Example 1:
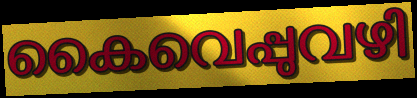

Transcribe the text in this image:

കൈവെപ്പുവഴി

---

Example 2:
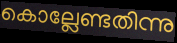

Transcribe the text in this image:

കൊല്ലേണ്ടതിന്നു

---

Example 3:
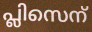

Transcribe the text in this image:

പ്ലിസെന്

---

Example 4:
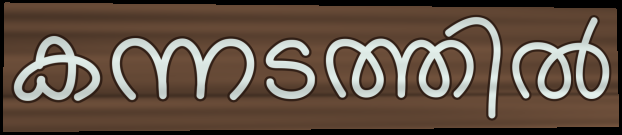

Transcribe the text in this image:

കന്നടത്തിൽ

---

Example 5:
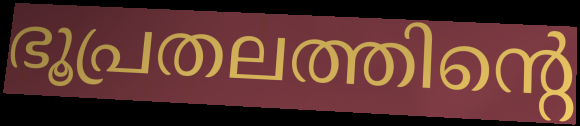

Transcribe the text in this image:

ഭൂപ്രതലത്തിന്റെ